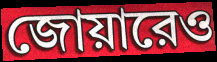
জোয়ারেও